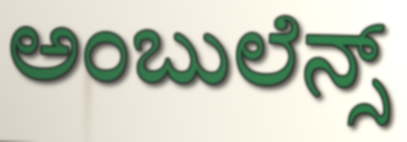
ಅಂಬುಲೆನ್ಸ್